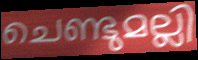
ചെണ്ടുമല്ലി